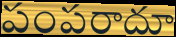
పంపరాదూ